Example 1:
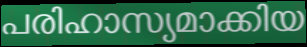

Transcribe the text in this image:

പരിഹാസ്യമാക്കിയ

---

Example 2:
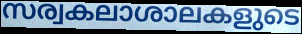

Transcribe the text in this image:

സര്വകലാശാലകളുടെ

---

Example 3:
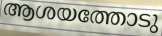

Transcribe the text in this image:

ആശയത്തോടു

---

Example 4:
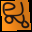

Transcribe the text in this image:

ല്ലു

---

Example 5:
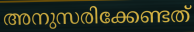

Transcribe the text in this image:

അനുസരിക്കേണ്ടത്